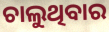
ଚାଲୁଥିବାର